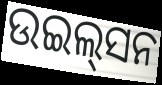
ଉଇଲ୍‌ସନ